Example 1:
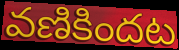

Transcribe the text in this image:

వణికిందట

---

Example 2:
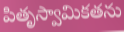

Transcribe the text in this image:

పితృస్వామికతను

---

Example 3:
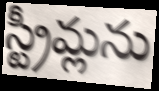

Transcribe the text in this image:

స్ట్రీమ్లను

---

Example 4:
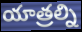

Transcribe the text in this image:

యాత్రల్ని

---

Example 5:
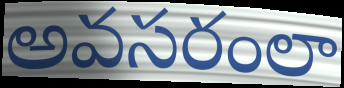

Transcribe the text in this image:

అవసరంలా